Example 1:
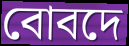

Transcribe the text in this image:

বোবদে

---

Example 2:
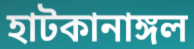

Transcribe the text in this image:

হাটকানাঙ্গল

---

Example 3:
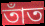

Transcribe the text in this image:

তাঁত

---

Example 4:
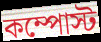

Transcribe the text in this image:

কম্পোস্ট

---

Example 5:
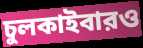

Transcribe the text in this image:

চুলকাইবারও